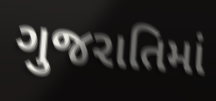
ગુજરાતિમાં